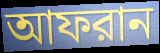
আফরান